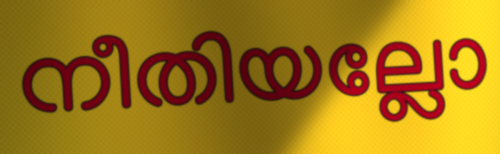
നീതിയല്ലോ